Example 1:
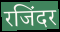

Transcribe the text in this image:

रजिंदर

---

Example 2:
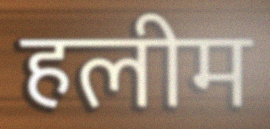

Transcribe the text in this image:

हलीम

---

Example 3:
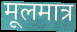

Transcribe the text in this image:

मूलमात्र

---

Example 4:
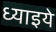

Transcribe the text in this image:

ध्याइये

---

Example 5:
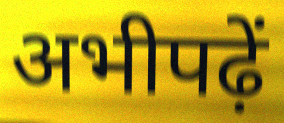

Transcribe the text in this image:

अभीपढ़ें